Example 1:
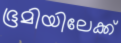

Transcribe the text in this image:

ഭൂമിയിലേക്ക്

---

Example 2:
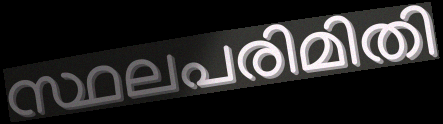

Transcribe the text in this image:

സ്ഥലപരിമിതി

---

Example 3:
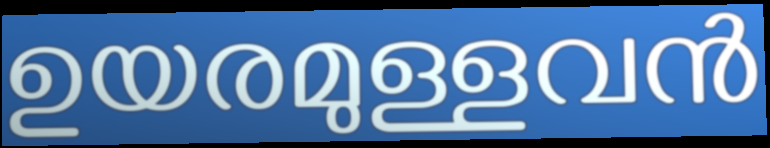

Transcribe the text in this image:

ഉയരമുള്ളവൻ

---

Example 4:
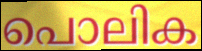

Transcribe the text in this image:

പൊലിക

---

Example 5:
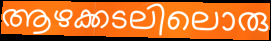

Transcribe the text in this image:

ആഴക്കടലിലൊരു